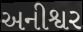
અનીશ્વર